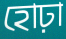
হোঢ়া